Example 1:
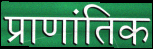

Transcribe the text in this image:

प्राणांतिक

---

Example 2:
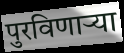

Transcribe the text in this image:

पुरविणार्‍या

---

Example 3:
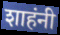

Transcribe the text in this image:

शाहंनी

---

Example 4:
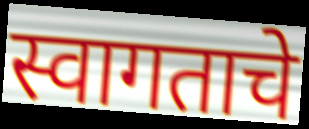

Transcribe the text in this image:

स्वागताचे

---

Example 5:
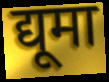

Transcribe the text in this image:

द्यूमा